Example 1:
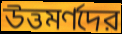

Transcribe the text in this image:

উত্তমর্ণদের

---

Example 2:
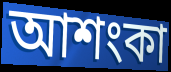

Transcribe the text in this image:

আশংকা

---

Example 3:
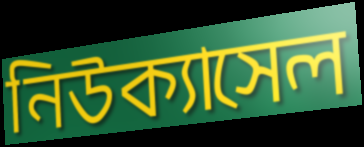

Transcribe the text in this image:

নিউক্যাসেল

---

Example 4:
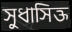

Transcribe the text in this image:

সুধাসিক্ত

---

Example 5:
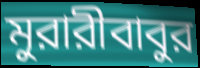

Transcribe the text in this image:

মুরারীবাবুর